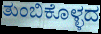
ತುಂಬಿಕೊಳ್ಳದ